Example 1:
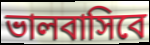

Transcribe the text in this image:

ভালবাসিবে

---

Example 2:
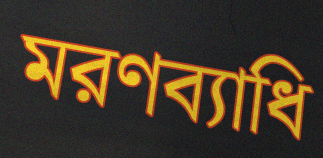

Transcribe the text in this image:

মরণব্যাধি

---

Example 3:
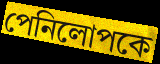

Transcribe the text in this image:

পেনিলোপকে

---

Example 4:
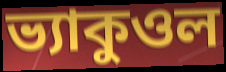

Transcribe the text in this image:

ভ্যাকুওল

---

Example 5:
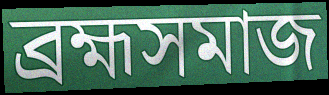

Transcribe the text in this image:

ব্রহ্মসমাজ